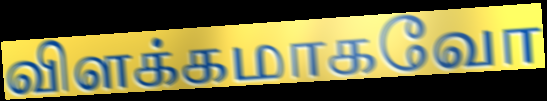
விளக்கமாகவோ